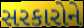
સરકારોને